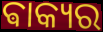
ଵାକ୍ଯର